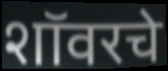
शॉवरचे